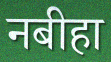
नबीहा